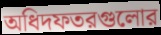
অধিদফতরগুলোর